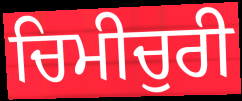
ਚਿਮੀਚੁਰੀ